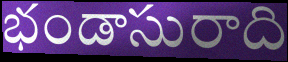
భండాసురాది